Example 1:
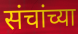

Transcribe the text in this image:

संचांच्या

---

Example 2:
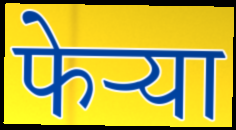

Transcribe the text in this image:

फेऱ्या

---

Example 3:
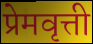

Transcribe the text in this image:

प्रेमवृत्ती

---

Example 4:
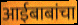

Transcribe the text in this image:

आईबाबांचा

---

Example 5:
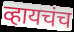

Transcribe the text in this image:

व्हायचंच